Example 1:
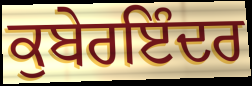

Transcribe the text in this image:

ਕੁਬੇਰਇੰਦਰ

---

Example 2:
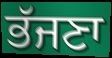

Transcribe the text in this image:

ਭੱਜਣਾ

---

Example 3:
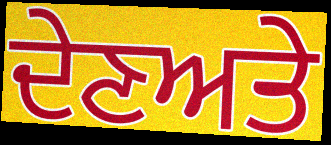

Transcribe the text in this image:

ਦੇਣਅਤੇ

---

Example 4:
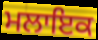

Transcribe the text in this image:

ਮਲਾਇਕ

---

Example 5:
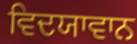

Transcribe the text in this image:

ਵਿਦਯਾਵਾਨ